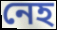
নেহ